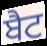
ਬੈਟ